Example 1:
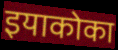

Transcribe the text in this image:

इयाकोका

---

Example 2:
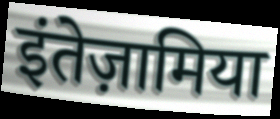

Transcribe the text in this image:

इंतेज़ामिया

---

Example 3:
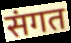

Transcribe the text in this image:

संगत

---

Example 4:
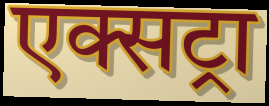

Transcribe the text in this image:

एक्सट्रा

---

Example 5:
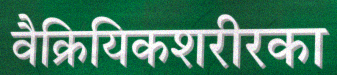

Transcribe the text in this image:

वैक्रियिकशरीरका